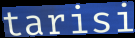
tarisi